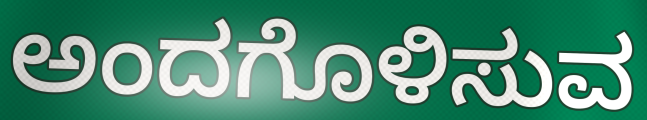
ಅಂದಗೊಳಿಸುವ